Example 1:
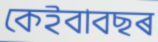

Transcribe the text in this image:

কেইবাবছৰ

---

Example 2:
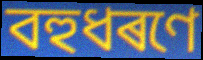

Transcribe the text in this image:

বহুধৰণে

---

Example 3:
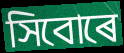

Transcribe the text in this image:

সিবোৰে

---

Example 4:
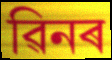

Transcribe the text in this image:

ৱিনৰ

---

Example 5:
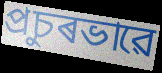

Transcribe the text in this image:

প্ৰচুৰভাৱে